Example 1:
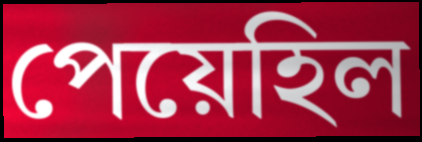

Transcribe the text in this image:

পেয়েহিল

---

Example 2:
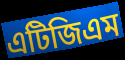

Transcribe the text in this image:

এটিজিএম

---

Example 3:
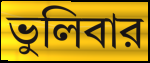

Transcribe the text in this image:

ভুলিবার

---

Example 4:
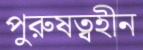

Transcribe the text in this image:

পুরুষত্বহীন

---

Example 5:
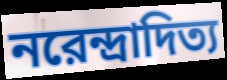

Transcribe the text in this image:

নরেন্দ্রাদিত্য